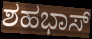
ಶಹಭಾಸ್